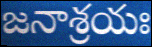
జనాశ్రయః